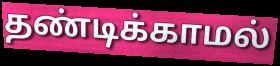
தண்டிக்காமல்